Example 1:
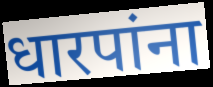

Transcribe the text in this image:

धारपांना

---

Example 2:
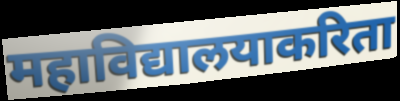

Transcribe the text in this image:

महाविद्यालयाकरिता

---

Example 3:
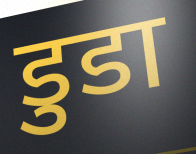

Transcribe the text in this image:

डुडा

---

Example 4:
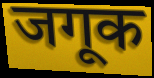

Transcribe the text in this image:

जगूक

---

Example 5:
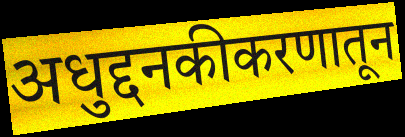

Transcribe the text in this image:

अधुद्दनकीकरणातून